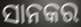
ସାନକର